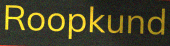
Roopkund